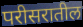
परीसरातील